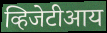
व्हिजेटीआय